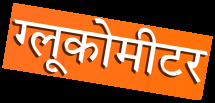
ग्लूकोमीटर